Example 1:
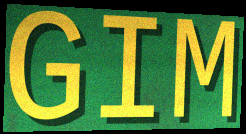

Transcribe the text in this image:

GIM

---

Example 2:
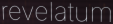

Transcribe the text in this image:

revelatum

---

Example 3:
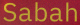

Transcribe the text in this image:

Sabah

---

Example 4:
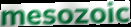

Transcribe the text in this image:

mesozoic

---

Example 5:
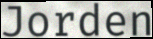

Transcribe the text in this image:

Jorden